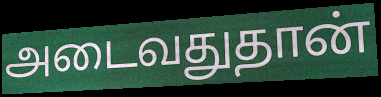
அடைவதுதான்